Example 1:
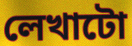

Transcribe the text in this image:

লেখাটো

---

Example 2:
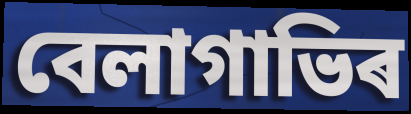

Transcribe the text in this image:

বেলাগাভিৰ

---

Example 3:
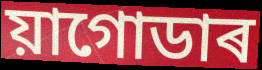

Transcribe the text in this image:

য়াগোডাৰ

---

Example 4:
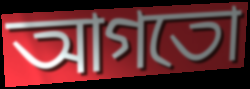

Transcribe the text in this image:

আগতো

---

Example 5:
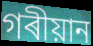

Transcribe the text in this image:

গৰীয়ান